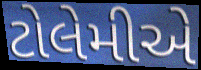
ટોલેમીએ